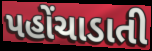
પહોંચાડાતી